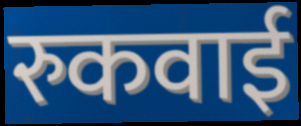
रुकवाई